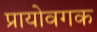
प्रायोवगक